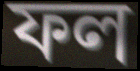
ফল